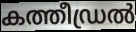
കത്തീഡ്രൽ